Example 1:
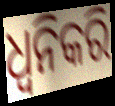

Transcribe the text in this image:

ଧ୍ୱନିକରି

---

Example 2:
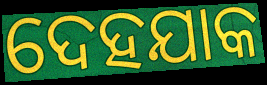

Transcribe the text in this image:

ଦେହଯାକ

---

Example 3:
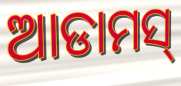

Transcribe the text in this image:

ଆଡାମସ୍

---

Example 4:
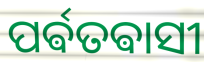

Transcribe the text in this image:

ପର୍ଵତଵାସୀ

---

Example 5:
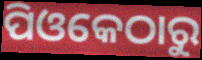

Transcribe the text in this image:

ପିଓକେଠାରୁ